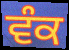
ਵੰਕ